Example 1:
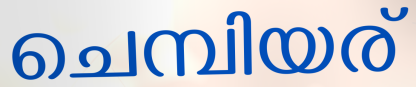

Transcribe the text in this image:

ചെമ്പിയര്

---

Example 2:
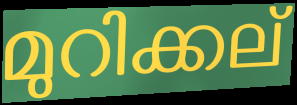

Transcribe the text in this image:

മുറിക്കല്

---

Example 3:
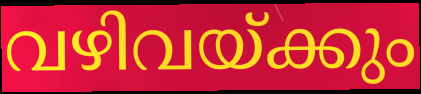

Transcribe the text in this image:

വഴിവയ്ക്കും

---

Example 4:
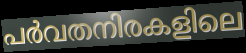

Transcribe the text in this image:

പർവതനിരകളിലെ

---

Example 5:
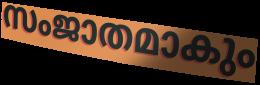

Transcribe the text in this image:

സംജാതമാകും